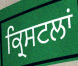
ਕ੍ਰਿਸਟਲਾਂ